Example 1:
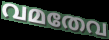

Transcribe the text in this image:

വമതേവ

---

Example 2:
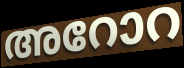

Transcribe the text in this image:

അറോറ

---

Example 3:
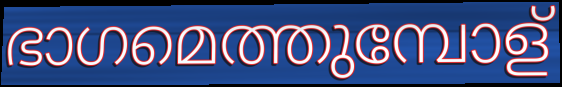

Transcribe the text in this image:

ഭാഗമെത്തുമ്പോള്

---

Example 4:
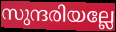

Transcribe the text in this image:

സുന്ദരിയല്ലേ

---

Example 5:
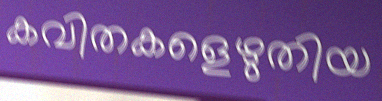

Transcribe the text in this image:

കവിതകളെഴുതിയ